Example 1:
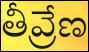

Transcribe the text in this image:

తీవ్రేణ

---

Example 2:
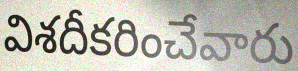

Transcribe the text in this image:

విశదీకరించేవారు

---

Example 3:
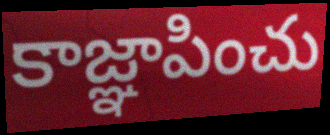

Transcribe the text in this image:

కాజ్ఞాపించు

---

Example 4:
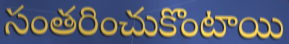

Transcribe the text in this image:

సంతరించుకొంటాయి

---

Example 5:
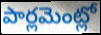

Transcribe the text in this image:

పార్లమెంట్లో